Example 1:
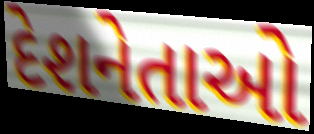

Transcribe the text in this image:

દેશનેતાઓ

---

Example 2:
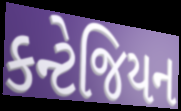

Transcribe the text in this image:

કન્ટેજિયન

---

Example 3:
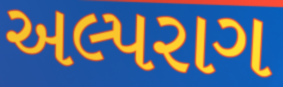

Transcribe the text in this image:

અલ્પરાગ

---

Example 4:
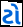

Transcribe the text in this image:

ટો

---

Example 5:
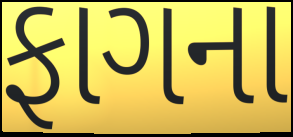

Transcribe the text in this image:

ફાગના